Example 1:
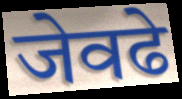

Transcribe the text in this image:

जेवढे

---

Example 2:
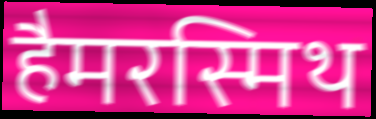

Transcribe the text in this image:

हैमरस्मिथ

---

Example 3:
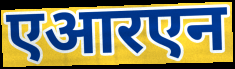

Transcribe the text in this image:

एआरएन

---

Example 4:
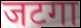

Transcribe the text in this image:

जटगा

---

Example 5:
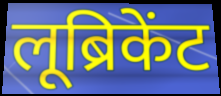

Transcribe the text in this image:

लूब्रिकेंट